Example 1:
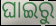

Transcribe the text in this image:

ଘାଇରୁ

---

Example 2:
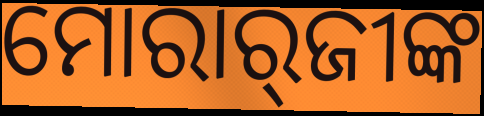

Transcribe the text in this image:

ମୋରାର୍‌ଜୀଙ୍କ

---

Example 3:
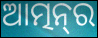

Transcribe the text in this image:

ଆତ୍ମନ୍‌ର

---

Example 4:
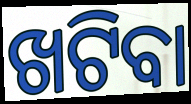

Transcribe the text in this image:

ଖଟିବା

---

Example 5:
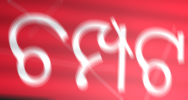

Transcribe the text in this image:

ଚମ୍ପଟ